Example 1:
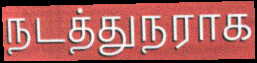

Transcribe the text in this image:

நடத்துநராக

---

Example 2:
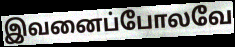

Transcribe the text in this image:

இவனைப்போலவே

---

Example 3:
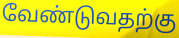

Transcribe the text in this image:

வேண்டுவதற்கு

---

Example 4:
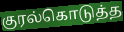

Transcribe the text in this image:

குரல்கொடுத்த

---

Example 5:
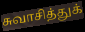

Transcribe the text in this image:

சுவாசித்துக்